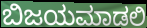
ಬಿಜಯಮಾಡಲಿ